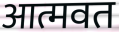
आत्मवत